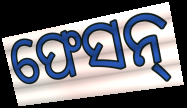
ଫେସନ୍